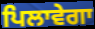
ਪਿਲਾਵੇਗਾ